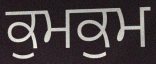
ਕੁਮਕੁਮ